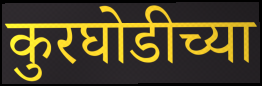
कुरघोडीच्या